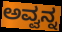
ಅವ್ವನ್ನ